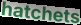
hatchets